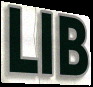
LIB